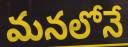
మనలోనే